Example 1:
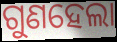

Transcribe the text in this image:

ଗୁଣହେଲା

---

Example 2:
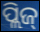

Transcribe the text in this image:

ପ୍ଲିଜ୍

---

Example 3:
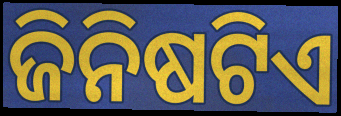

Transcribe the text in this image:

ଜିନିଷଟିଏ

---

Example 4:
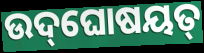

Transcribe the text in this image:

ଉଦ୍‌ଘୋଷୟତ୍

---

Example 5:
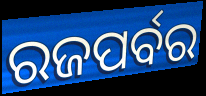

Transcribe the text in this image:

ରଜପର୍ବର